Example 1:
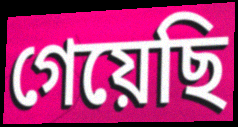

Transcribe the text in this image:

গেয়েছি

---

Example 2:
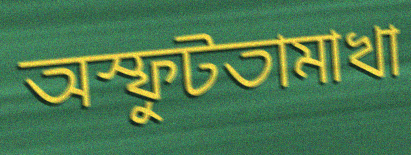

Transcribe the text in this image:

অস্ফুটতামাখা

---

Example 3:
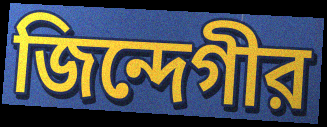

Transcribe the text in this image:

জিন্দেগীর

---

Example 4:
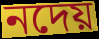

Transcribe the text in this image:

নদেয়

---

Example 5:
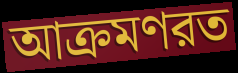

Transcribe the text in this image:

আক্রমণরত